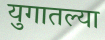
युगातल्या